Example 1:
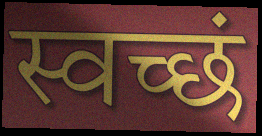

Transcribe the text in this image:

स्वच्छं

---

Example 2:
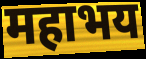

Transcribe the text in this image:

महाभय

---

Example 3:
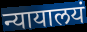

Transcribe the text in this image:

न्यायालयं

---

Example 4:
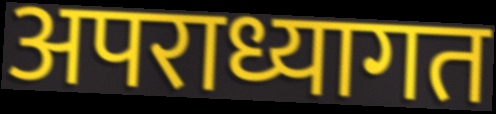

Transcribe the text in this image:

अपराध्यागत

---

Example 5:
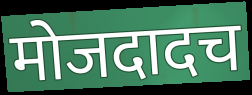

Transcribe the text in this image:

मोजदादच